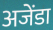
अजेंडा